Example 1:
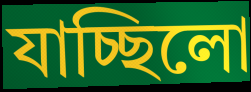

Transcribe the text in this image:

যাচ্ছিলো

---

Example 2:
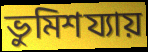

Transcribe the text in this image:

ভুমিশয্যায়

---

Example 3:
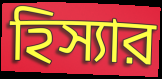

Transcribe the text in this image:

হিস্যার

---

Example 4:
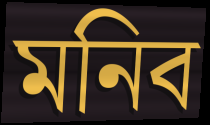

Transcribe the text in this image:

মনিব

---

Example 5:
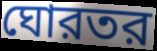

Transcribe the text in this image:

ঘোরতর